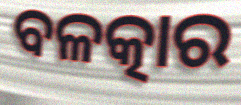
ବଳତ୍କାର